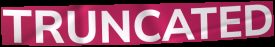
TRUNCATED